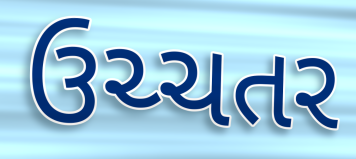
ઉચ્ચતર